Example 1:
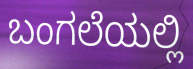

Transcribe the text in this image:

ಬಂಗಲೆಯಲ್ಲಿ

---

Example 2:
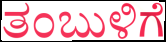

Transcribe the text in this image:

ತಂಬುಳಿಗೆ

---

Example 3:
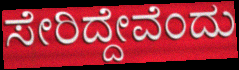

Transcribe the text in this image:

ಸೇರಿದ್ದೇವೆಂದು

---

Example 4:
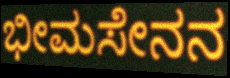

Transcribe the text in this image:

ಭೀಮಸೇನನ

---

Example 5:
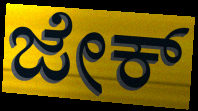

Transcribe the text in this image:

ಜೇಕ್